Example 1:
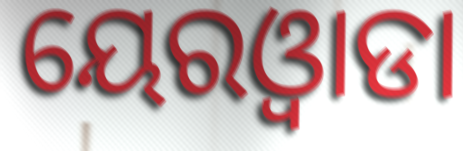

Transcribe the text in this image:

ୟେରଓ୍ୱାଡା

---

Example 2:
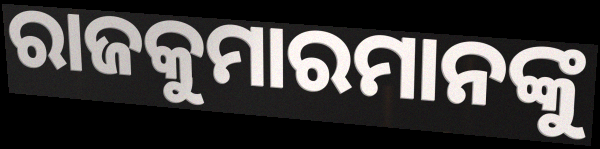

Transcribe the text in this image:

ରାଜକୁମାରମାନଙ୍କୁ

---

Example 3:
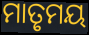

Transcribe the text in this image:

ମାତୃମୟ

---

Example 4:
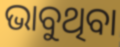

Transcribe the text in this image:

ଭାବୁଥିବା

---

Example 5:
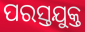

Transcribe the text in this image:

ପରସ୍ତଯୁକ୍ତ